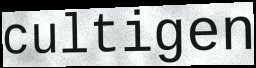
cultigen